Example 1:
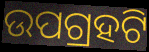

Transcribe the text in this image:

ଉପଗ୍ରହଟି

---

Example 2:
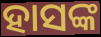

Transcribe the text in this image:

ହାସଙ୍କ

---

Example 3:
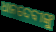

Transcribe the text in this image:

ଧାନଦେବୀଙ୍କୁ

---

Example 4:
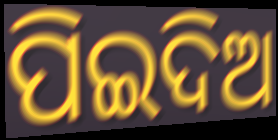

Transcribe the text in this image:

ପିଇଦିଅ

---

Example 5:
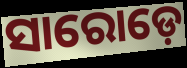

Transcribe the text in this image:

ସାରୋଡ଼େ